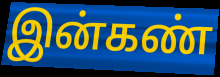
இன்கண்